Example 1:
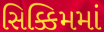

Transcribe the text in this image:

સિક્કિમમાં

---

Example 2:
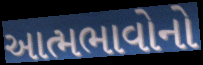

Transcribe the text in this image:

આત્મભાવોનો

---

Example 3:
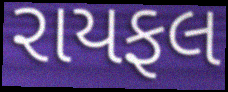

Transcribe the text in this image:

રાયફલ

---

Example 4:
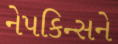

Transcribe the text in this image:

નેપકિન્સને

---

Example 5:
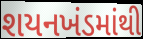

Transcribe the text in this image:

શયનખંડમાંથી